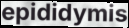
epididymis